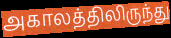
அகாலத்திலிருந்து